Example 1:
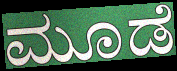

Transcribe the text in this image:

ಮೂಡೆ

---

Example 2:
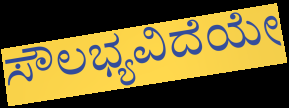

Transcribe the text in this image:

ಸೌಲಭ್ಯವಿದೆಯೇ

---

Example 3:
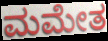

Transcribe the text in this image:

ಮಮೇತ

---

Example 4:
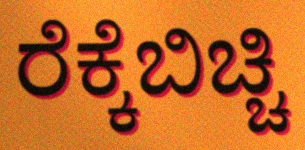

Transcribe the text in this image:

ರೆಕ್ಕೆಬಿಚ್ಚಿ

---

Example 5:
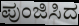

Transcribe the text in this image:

ಪುಂಜಿಸಿದ